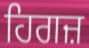
ਹਿਗਜ਼